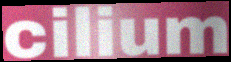
cilium